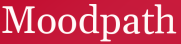
Moodpath